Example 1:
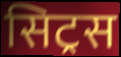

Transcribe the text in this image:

सिट्रस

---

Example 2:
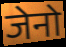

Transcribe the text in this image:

जेनो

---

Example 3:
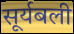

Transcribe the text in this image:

सूर्यबली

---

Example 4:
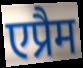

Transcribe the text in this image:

एप्रैम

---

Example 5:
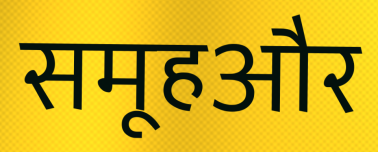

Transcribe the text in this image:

समूहऔर